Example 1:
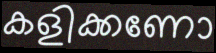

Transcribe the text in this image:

കളിക്കണോ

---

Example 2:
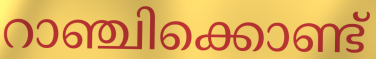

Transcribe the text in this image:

റാഞ്ചിക്കൊണ്ട്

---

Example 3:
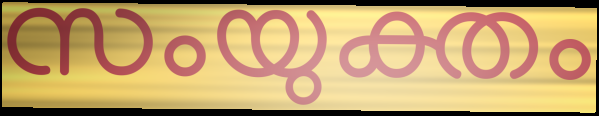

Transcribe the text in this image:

സംയുക്തം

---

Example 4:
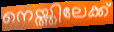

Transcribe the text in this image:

നെയ്ത്തിലേക്ക്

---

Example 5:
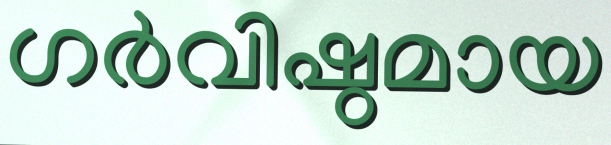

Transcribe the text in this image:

ഗർവിഷ്ഠമായ